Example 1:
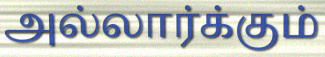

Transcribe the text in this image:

அல்லார்க்கும்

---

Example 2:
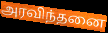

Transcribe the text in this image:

அரவிந்தனை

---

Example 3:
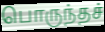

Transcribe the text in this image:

பொருந்தச்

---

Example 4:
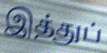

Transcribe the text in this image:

இத்துப்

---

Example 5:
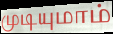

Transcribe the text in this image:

முடியுமாம்